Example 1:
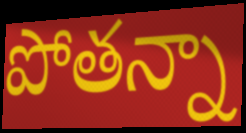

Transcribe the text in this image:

పోతన్నా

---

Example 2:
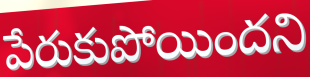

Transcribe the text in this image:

పేరుకుపోయిందని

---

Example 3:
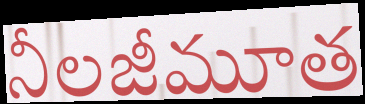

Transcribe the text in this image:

నీలజీమూత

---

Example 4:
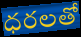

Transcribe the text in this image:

ధరలతో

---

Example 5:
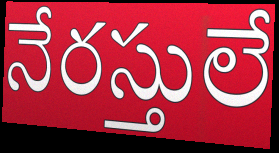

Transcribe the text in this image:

నేరస్తులే